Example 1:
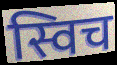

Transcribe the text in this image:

स्विच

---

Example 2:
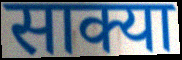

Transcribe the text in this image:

साक्या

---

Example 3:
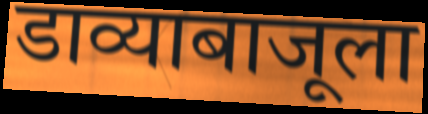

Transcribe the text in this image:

डाव्याबाजूला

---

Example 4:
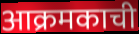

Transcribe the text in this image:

आक्रमकाची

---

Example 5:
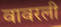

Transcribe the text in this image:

वावरली